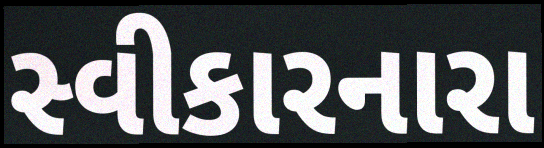
સ્વીકારનારા